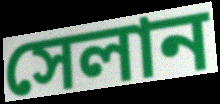
সেলান